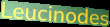
Leucinodes